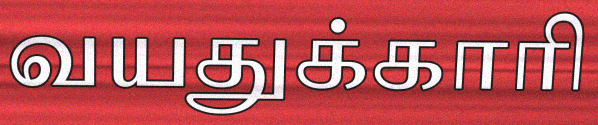
வயதுக்காரி